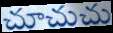
చూచుచు